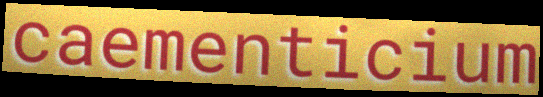
caementicium